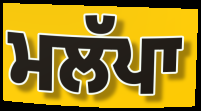
ਮਲੱਪਾ